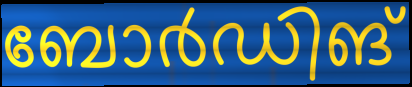
ബോർഡിങ്